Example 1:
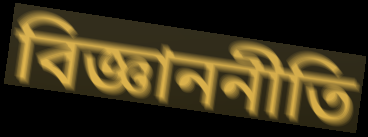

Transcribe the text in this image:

বিজ্ঞাননীতি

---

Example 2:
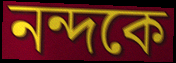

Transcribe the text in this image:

নন্দকে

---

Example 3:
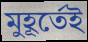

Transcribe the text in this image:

মুহূর্তেই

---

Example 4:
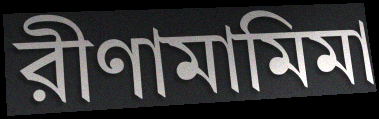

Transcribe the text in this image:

রীণামামিমা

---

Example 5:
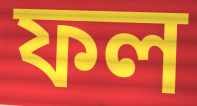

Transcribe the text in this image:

ফল